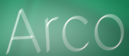
Arco